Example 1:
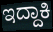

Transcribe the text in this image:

ಇದ್ದಾಕಿ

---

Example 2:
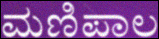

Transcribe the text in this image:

ಮಣಿಪಾಲ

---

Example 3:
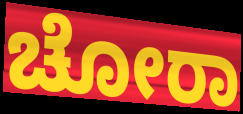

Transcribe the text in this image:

ಚೋರಾ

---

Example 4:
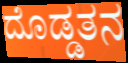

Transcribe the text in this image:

ದೊಡ್ಡತನ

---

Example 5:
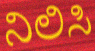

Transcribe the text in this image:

ನಿಲಿಸಿ